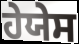
ਹੇਯੇਸ